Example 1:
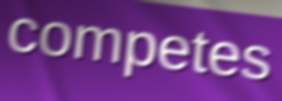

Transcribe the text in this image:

competes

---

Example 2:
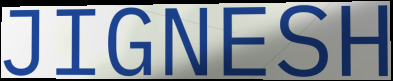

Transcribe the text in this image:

JIGNESH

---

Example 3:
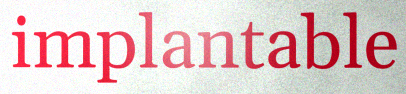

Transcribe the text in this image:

implantable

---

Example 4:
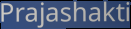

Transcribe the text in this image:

Prajashakti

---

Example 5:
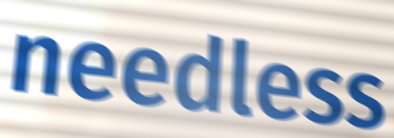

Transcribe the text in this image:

needless